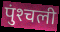
पुंश्चली